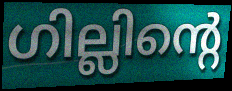
ഗില്ലിന്റെ